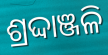
ଶ୍ରଦ୍ଦାଞ୍ଜଳି